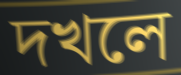
দখলে